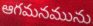
ఆగమనమును